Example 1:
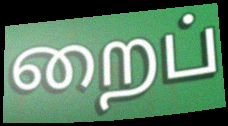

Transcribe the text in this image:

றைப்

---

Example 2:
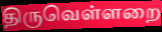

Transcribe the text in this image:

திருவெள்ளறை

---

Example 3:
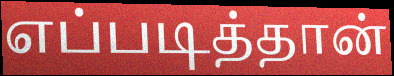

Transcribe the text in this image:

எப்படித்தான்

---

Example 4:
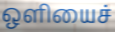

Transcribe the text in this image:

ஒளியைச்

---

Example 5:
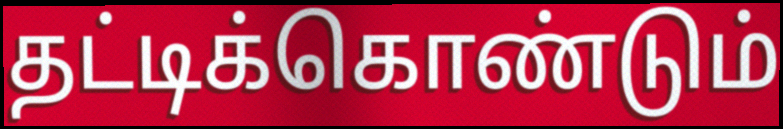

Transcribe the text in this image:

தட்டிக்கொண்டும்